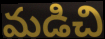
మడిచి